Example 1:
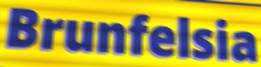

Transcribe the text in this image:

Brunfelsia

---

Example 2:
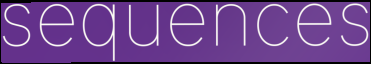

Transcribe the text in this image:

sequences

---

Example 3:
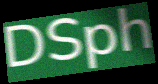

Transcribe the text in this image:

DSph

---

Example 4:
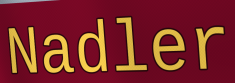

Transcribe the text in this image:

Nadler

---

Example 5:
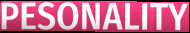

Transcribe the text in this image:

PESONALITY